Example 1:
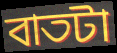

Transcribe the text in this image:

বাতটা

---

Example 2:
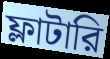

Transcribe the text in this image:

ফ্লাটারি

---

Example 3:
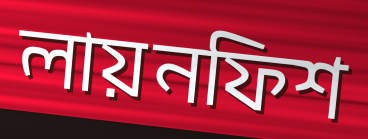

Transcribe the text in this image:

লায়নফিশ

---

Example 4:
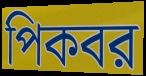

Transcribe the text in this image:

পিকবর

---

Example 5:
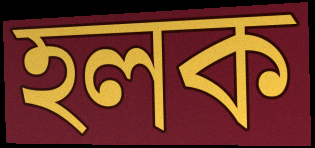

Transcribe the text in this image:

হলক